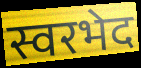
स्वरभेद